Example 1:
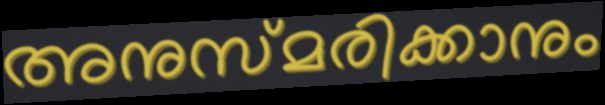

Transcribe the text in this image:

അനുസ്മരിക്കാനും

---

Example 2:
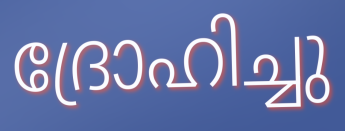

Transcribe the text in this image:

ദ്രോഹിച്ചു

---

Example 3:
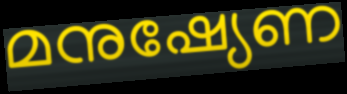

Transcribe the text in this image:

മനുഷ്യേണ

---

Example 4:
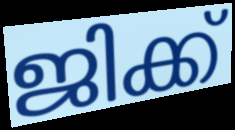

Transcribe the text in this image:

ജിക്ക്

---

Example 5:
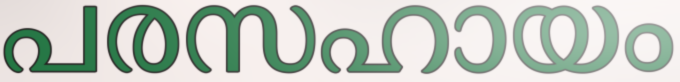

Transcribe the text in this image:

പരസഹായം